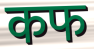
कफ